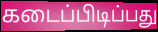
கடைப்பிடிப்பது